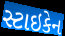
સ્ટાઇકેન